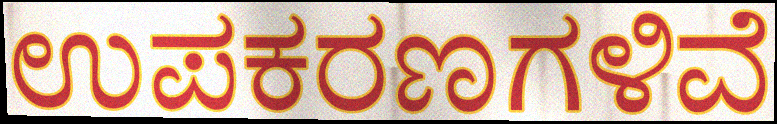
ಉಪಕರಣಗಳಿವೆ